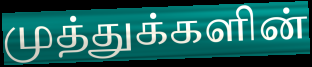
முத்துக்களின்